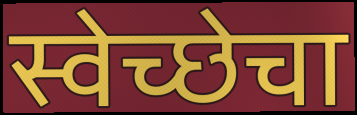
स्वेच्छेचा